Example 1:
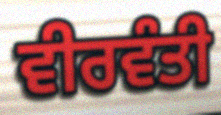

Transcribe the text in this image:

ਵੀਰਵੰਤੀ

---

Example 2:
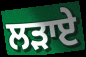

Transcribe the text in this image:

ਲੜਾਏ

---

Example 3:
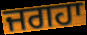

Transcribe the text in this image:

ਜਗਹਾ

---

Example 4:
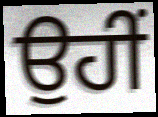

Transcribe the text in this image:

ਉਹੀਂ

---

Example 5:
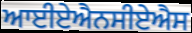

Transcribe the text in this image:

ਆਈਏਐਨਸੀਏਐਸ